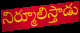
నిర్మూలిస్తాడు